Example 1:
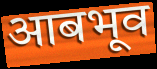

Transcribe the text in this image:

आबभूव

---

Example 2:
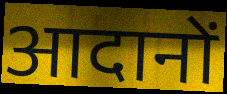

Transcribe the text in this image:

आदानों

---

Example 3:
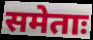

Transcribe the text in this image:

समेताः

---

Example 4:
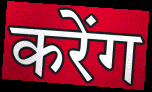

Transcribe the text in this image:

करेंग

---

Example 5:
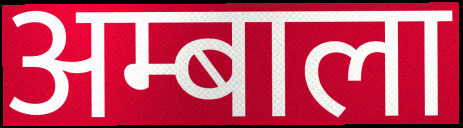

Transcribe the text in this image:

अम्‍बाला